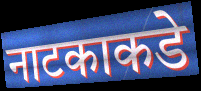
नाटकाकडे